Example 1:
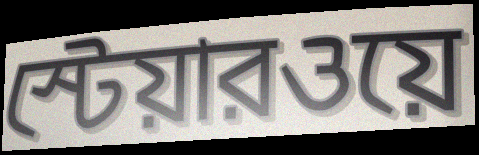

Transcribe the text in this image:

স্টেয়ারওয়ে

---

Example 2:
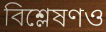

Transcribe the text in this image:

বিশ্লেষণও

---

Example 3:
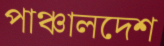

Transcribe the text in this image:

পাঞ্চালদেশ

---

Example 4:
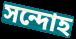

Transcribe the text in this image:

সন্দোহ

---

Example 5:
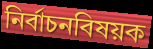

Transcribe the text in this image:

নির্বাচনবিষয়ক